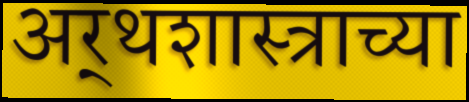
अर्थशास्त्राच्या